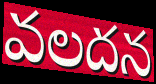
వలదన